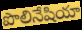
పొలినేషియా